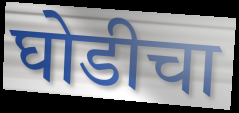
घोडीचा